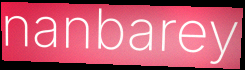
nanbarey